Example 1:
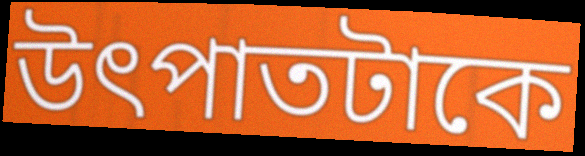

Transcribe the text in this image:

উৎপাতটাকে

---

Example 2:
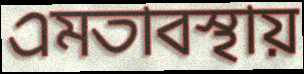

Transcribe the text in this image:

এমতাবস্থায়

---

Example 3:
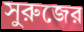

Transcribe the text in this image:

সুরুজের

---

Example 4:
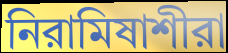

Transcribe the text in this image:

নিরামিষাশীরা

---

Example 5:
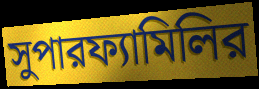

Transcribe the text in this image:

সুপারফ্যামিলির